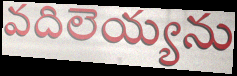
వదిలెయ్యను